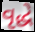
વૃદ્ધે